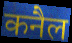
कनैल